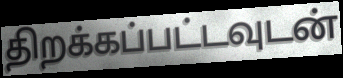
திறக்கப்பட்டவுடன்